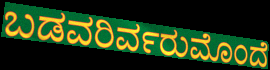
ಬಡವರಿರ್ವರುಮೊಂದೆ